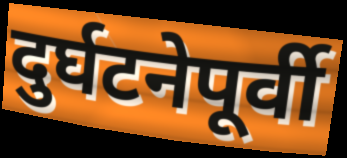
दुर्घटनेपूर्वी